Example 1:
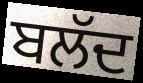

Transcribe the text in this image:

ਬਲੱਦ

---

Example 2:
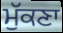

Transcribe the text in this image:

ਮੁੱਕਣਾ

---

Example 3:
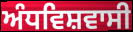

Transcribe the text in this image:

ਅੰਧਵਿਸ਼ਵਾਸੀ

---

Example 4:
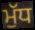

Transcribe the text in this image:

ਮੁੱਧ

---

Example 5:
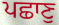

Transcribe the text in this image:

ਪਛਾਣੁ